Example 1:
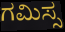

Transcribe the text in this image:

ಗಮಿಸ್ಸ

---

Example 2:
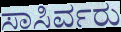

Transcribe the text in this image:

ಸಾಸಿರ್ವರು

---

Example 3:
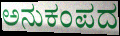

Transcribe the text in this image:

ಅನುಕಂಪದ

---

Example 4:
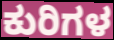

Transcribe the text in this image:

ಕುರಿಗಳ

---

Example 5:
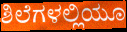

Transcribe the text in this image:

ಶಿಲೆಗಳಲ್ಲಿಯೂ